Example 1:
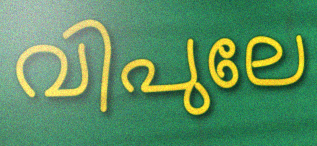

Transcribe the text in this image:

വിപുലേ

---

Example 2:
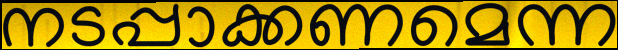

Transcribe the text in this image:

നടപ്പാക്കണമെന്ന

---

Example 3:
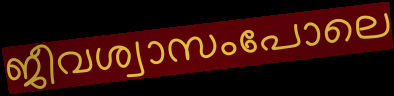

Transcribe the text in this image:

ജീവശ്വാസംപോലെ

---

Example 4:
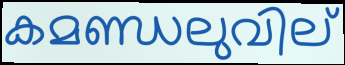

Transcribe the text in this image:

കമണ്ഡലുവില്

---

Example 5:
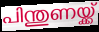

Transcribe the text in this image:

പിന്തുണയ്ക്ക്